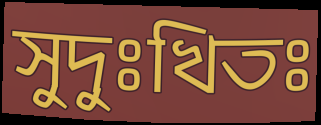
সুদুঃখিতঃ